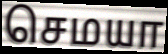
செமயா